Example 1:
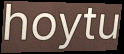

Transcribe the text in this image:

hoytu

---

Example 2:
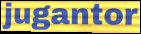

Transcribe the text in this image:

jugantor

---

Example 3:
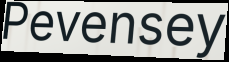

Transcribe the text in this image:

Pevensey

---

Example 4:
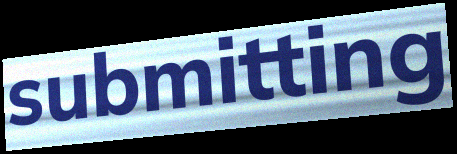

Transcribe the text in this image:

submitting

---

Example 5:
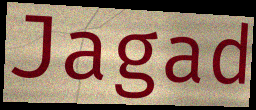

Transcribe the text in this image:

Jagad